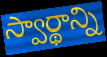
స్వార్థాన్ని